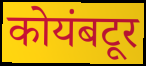
कोयंबटूर